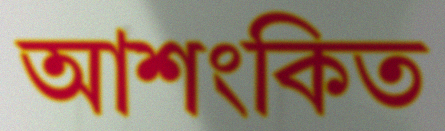
আশংকিত